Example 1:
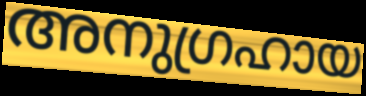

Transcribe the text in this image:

അനുഗ്രഹായ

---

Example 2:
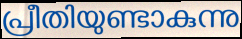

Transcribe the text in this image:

പ്രീതിയുണ്ടാകുന്നു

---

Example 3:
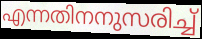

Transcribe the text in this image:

എന്നതിനനുസരിച്ച്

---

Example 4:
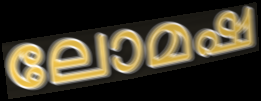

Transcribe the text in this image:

ലോമഷ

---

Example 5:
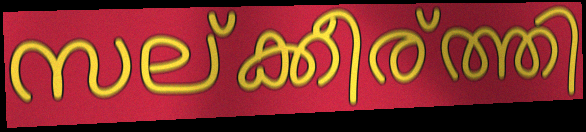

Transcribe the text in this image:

സല്ക്കീര്ത്തി